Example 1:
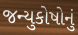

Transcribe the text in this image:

જન્યુકોષોનું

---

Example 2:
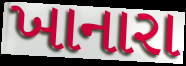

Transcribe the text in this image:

ખાનારા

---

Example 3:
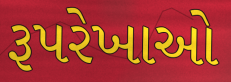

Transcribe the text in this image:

રૂપરેખાઓ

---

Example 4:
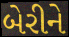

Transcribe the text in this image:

બેરીને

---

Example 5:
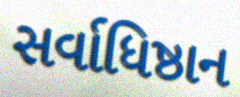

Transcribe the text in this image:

સર્વાધિષ્ઠાન